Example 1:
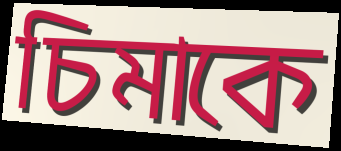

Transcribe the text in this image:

চিমাকে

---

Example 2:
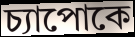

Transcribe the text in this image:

চ্যাপোকে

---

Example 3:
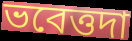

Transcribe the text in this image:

ভবেত্তদা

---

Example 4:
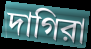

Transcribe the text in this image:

দাগিরা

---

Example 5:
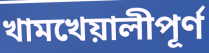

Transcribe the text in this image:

খামখেয়ালীপূর্ণ